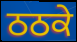
ਠਠਕੇ